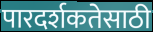
पारदर्शकतेसाठी